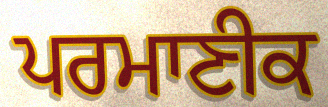
ਪਰਮਾਣੀਕ